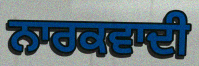
ਨਾਰਕਵਾਦੀ